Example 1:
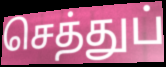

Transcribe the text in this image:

செத்துப்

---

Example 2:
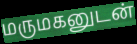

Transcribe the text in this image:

மருமகனுடன்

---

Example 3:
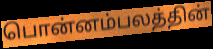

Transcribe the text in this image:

பொன்னம்பலத்தின்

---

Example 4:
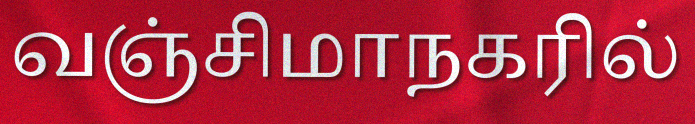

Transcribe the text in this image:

வஞ்சிமாநகரில்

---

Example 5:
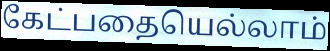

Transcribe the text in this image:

கேட்பதையெல்லாம்